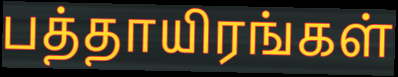
பத்தாயிரங்கள்